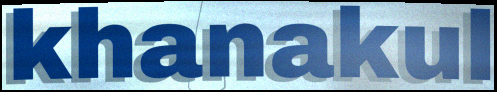
khanakul